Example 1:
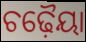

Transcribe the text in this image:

ଚଢ଼ୈୟା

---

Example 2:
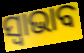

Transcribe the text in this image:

ସ୍ୱାଭାବ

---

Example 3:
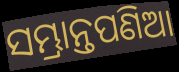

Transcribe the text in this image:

ସମ୍ଭ୍ରାନ୍ତପଣିଆ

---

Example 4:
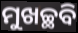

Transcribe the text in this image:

ମୁଖଚ୍ଛବି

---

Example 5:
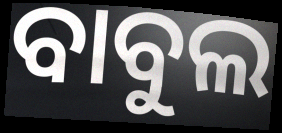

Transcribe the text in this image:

ବାବୁଲ